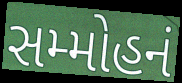
સમ્મોહનં